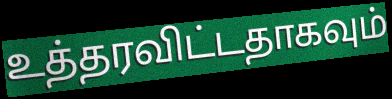
உத்தரவிட்டதாகவும்